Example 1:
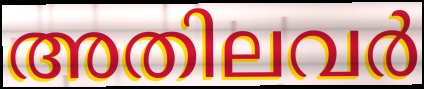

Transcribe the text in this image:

അതിലവർ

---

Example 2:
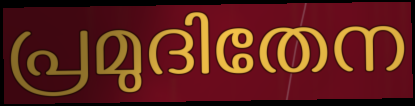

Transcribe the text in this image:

പ്രമുദിതേന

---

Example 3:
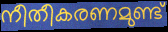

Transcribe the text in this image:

നീതീകരണമുണ്ട്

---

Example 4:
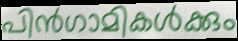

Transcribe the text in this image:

പിൻഗാമികൾക്കും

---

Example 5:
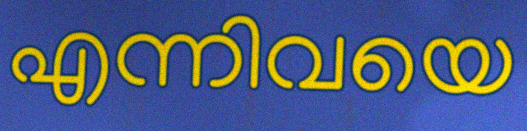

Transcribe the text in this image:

എന്നിവയെ